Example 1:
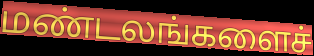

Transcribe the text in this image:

மண்டலங்களைச்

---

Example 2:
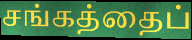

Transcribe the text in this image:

சங்கத்தைப்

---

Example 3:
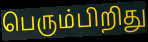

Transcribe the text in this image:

பெரும்பிறிது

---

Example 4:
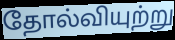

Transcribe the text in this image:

தோல்வியுற்று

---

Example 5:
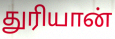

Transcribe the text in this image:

துரியான்